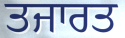
ਤਜਾਰਤ